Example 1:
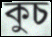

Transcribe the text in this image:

কুচ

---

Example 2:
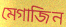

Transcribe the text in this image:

মেগাজিন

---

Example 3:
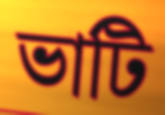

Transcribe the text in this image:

ভাটি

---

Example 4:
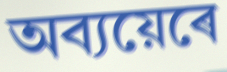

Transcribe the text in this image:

অব্যয়েৰে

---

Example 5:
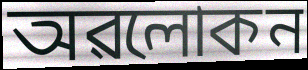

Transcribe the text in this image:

অৱলোকন